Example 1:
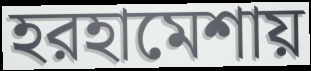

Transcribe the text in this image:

হরহামেশায়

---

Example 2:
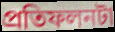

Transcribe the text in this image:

প্রতিফলনটা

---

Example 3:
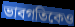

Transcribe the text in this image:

ভাবগতিকেও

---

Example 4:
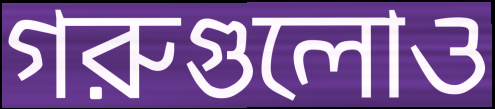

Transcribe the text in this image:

গরুগুলোও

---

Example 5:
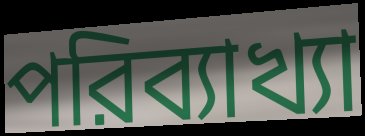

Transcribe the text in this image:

পরিব্যাখ্যা